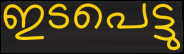
ഇടപെട്ടു